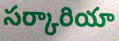
సర్కారియా